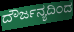
ದೌರ್ಜನ್ಯದಿಂದ